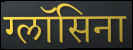
ग्लॉसिना